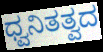
ಧ್ವನಿತತ್ವದ